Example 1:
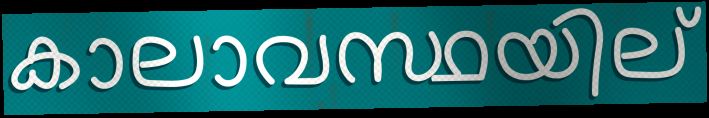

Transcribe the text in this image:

കാലാവസ്ഥയില്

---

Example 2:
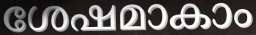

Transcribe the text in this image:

ശേഷമാകാം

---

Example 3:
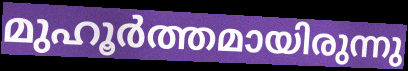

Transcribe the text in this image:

മുഹൂർത്തമായിരുന്നു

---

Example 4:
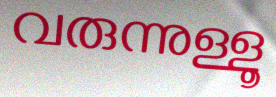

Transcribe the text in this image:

വരുന്നുള്ളൂ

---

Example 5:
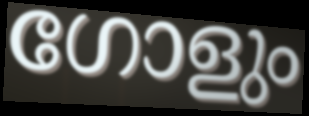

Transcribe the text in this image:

ഗോളും